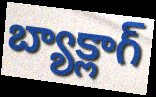
బ్యాక్లాగ్